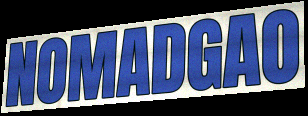
NOMADGAO